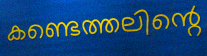
കണ്ടെത്തലിന്റെ